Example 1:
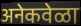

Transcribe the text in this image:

अनेकवेळा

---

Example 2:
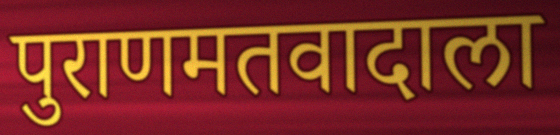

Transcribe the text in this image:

पुराणमतवादाला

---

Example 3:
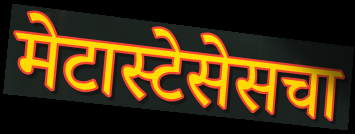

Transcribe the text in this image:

मेटास्टेसेसचा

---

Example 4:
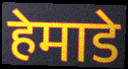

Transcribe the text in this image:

हेमाडे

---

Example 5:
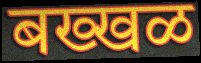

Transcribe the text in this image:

बख्खळ